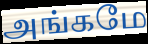
அங்கமே